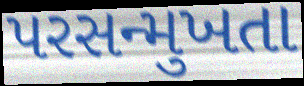
પરસન્મુખતા